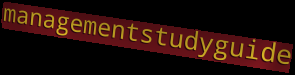
managementstudyguide